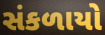
સંકળાયો